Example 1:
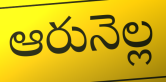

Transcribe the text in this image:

ఆరునెల్ల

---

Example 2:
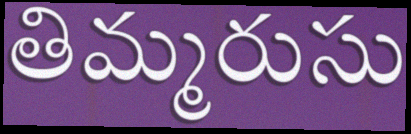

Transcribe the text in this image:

తిమ్మరుసు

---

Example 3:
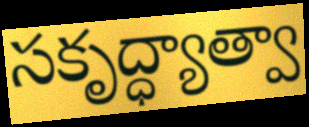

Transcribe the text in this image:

సకృద్ధ్యాత్వా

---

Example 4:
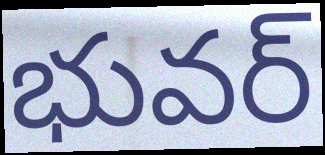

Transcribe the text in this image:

భువర్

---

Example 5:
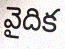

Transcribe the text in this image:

వైదిక